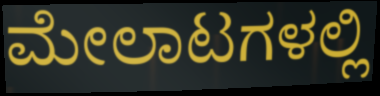
ಮೇಲಾಟಗಳಲ್ಲಿ